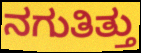
ನಗುತಿತ್ತು